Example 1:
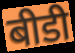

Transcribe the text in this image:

बीडी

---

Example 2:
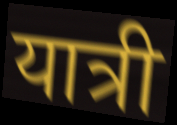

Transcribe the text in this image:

यात्री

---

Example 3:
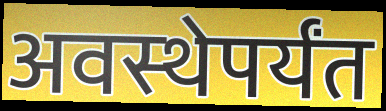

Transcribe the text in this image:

अवस्थेपर्यंत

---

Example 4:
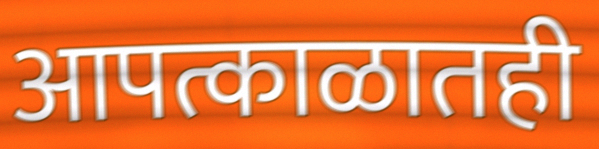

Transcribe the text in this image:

आपत्काळातही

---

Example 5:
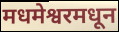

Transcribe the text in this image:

मधमेश्वरमधून